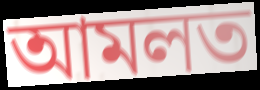
আমলত